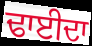
ਢਾਈਦਾ